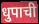
धुपाची